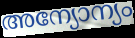
അന്യോന്യം